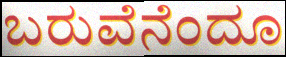
ಬರುವೆನೆಂದೂ